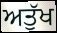
ਅਤੁੱਖ